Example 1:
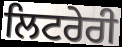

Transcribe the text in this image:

ਲਿਟਰੇਰੀ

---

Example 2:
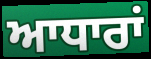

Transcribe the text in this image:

ਆਧਾਰਾਂ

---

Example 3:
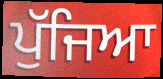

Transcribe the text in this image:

ਪੁੱਜਿਆ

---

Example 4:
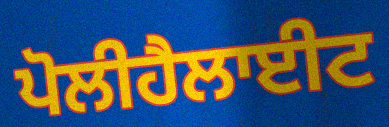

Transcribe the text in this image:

ਪੋਲੀਹੈਲਾਈਟ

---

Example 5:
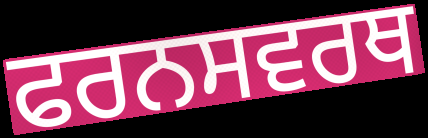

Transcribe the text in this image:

ਫਰਨਸਵਰਥ